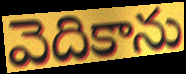
వెదికాను